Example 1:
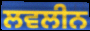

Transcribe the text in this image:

ਲਵਲੀਨ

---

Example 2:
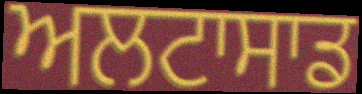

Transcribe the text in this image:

ਅਲਟਾਸਾਡ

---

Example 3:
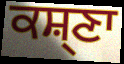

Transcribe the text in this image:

ਕਸ਼੍ਣਾ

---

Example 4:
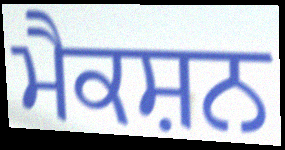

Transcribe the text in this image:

ਮੈਕਸ਼ਨ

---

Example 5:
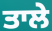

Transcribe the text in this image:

ਤਾਲੇ